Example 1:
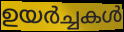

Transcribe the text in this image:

ഉയർച്ചകൾ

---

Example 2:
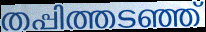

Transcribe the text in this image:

തപ്പിത്തടഞ്ഞ്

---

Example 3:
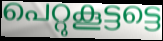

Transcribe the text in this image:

പെറ്റുകൂട്ടട്ടെ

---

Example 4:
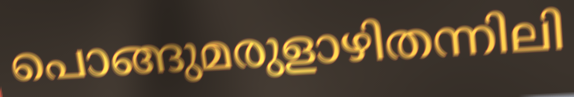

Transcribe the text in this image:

പൊങ്ങുമരുളാഴിതന്നിലി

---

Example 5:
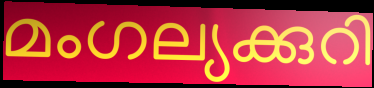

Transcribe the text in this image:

മംഗല്യക്കുറി